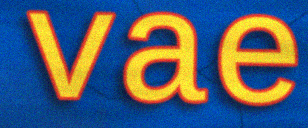
vae